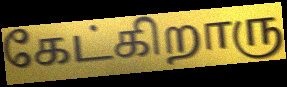
கேட்கிறாரு